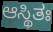
ಆಸ್ಥಿತಃ